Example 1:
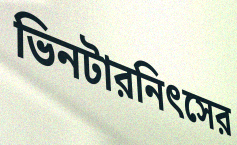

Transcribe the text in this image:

ভিনটারনিৎসের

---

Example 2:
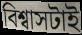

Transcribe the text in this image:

বিশ্বাসটাই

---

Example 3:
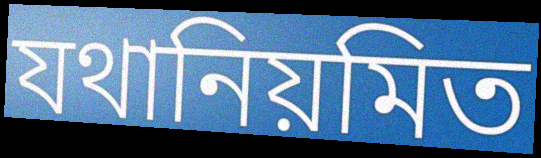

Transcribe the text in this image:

যথানিয়মিত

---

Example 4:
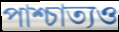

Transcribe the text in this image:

পাশ্চাত্যও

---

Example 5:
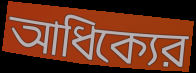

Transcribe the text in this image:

আধিক্যের